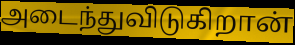
அடைந்துவிடுகிறான்